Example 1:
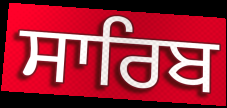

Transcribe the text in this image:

ਸਾਰਿਬ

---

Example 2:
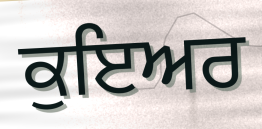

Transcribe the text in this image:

ਕੁਇਅਰ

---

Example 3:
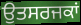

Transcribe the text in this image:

ਉਤਸਰਜਕਾਂ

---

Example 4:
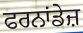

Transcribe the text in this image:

ਫਰਨਾਂਡੇਜ਼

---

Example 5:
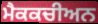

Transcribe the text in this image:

ਮੈਕਕਚੀਅਨ